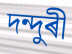
দন্দুৰী